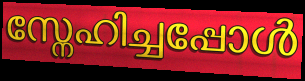
സ്നേഹിച്ചപ്പോൾ